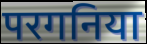
परगनिया